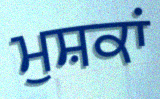
ਮੁਸ਼ਕਾਂ